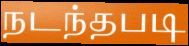
நடந்தபடி